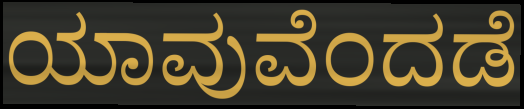
ಯಾವುವೆಂದಡೆ